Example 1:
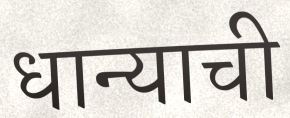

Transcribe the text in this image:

धान्याची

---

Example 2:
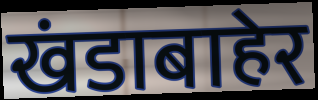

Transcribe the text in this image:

खंडाबाहेर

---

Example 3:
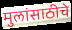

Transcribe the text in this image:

मुलांसाठीचे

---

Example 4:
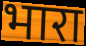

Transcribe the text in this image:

भारा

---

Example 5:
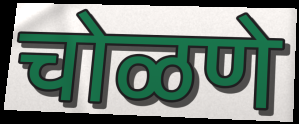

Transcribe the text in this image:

चोळणे